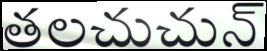
తలచుచున్